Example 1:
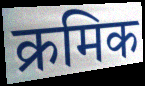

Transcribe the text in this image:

क्रमिक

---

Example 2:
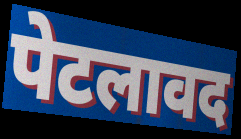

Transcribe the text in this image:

पेटलावद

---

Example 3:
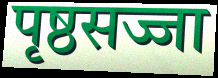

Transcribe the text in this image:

पृष्ठसज्जा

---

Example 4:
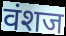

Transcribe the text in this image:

वंशज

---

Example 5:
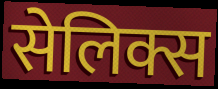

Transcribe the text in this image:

सेलिक्स